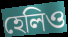
হেলিও